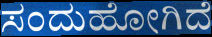
ಸಂದುಹೋಗಿದೆ